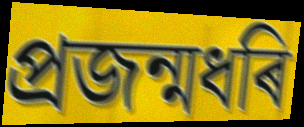
প্ৰজন্মধৰি